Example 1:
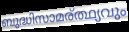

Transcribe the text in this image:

ബുദ്ധിസാമര്ത്ഥ്യവും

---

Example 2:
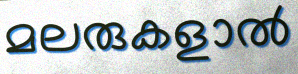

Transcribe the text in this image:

മലരുകളാൽ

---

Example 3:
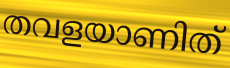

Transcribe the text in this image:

തവളയാണിത്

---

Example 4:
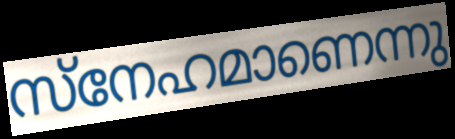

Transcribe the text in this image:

സ്നേഹമാണെന്നു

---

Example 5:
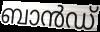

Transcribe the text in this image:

ബാൻഡ്